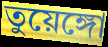
তুয়েঙ্গো